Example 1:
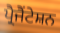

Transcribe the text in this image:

ਪ੍ਰੈਜੈਂਟੇਸ਼ਨ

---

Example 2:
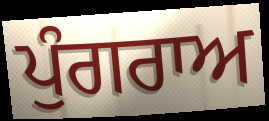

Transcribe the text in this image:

ਪੁੰਗਰਾਅ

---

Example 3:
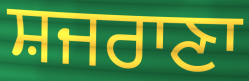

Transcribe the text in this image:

ਸ਼ਜਰਾਣਾ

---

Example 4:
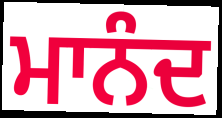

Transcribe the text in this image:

ਮਾਨੰਦ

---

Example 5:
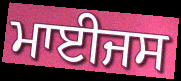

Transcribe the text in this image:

ਮਾਈਜਸ